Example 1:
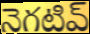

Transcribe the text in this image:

నెగటివ్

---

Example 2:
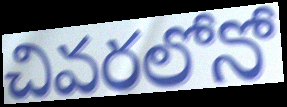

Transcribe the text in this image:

చివరలోనో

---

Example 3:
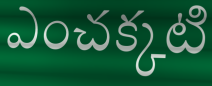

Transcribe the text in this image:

ఎంచక్కటి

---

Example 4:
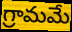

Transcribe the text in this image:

గ్రామమే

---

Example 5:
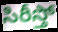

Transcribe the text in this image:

సిరీస్తో